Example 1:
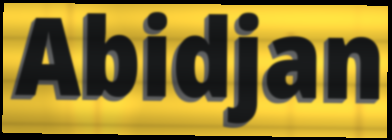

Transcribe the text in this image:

Abidjan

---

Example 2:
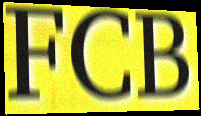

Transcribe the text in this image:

FCB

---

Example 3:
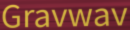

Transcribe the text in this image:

Gravwav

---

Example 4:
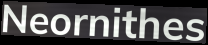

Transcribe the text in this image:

Neornithes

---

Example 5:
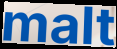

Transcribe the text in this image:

malt